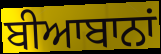
ਬੀਆਬਾਨਾਂ